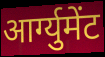
आर्ग्युमेंट